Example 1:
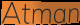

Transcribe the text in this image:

Atman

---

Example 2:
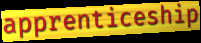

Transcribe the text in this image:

apprenticeship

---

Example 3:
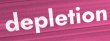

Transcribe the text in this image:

depletion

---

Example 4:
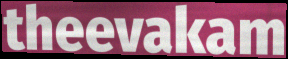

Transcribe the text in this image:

theevakam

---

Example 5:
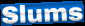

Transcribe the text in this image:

Slums